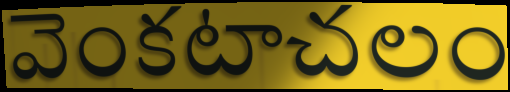
వెంకటాచలం